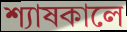
শ্যাষকালে